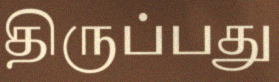
திருப்பது